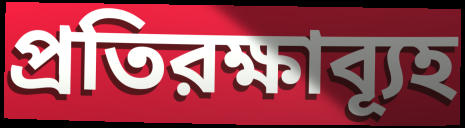
প্রতিরক্ষাব্যূহ